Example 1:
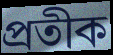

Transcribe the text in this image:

প্রতীক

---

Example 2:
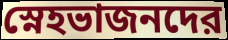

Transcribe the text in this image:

স্নেহভাজনদের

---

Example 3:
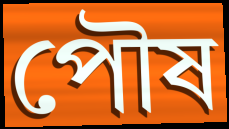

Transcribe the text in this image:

পৌষ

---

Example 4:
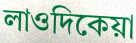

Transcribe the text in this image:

লাওদিকেয়া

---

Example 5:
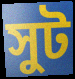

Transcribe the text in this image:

সুট